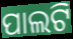
ପାଲଟି